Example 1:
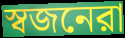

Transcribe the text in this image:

স্বজনেরা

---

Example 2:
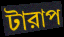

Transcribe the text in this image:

টারাপ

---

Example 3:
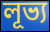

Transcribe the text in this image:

লূভ্য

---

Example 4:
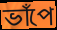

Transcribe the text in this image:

ভাঁপে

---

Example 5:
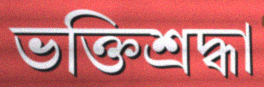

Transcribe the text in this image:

ভক্তিশ্রদ্ধা